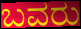
ಬವರು